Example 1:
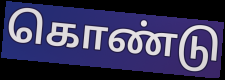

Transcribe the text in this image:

கொண்டு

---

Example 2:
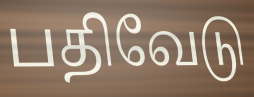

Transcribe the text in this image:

பதிவேடு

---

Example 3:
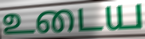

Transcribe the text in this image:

உடைய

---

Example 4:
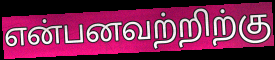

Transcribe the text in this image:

என்பனவற்றிற்கு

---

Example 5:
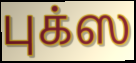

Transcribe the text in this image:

புக்ஸ